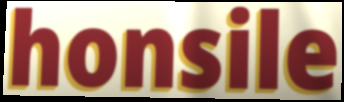
honsile